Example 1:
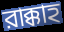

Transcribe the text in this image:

রাক্কাহ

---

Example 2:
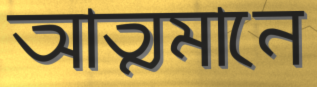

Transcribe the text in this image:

আত্মমানে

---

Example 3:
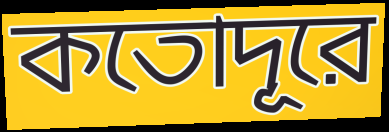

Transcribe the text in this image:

কতোদূরে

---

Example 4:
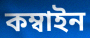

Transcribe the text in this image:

কম্বাইন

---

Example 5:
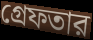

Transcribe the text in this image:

গ্রেফতার